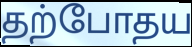
தற்போதய